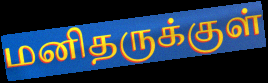
மனிதருக்குள்